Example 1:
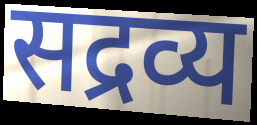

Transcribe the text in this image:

सद्रव्य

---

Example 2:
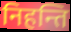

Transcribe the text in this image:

निहन्ति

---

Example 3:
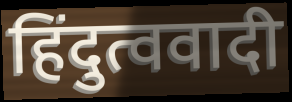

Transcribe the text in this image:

हिंदुत्ववादी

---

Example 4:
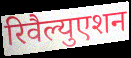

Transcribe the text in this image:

रिवैल्युएशन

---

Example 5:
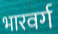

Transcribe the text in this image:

भारवर्ग